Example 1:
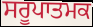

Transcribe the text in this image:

ਸਰੂਪਾਤਮਕ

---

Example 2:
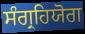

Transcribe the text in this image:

ਸੰਗ੍ਰਹਿਯੋਗ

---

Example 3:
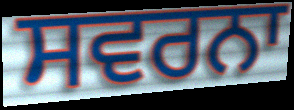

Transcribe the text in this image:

ਸਵਰਨਾ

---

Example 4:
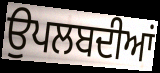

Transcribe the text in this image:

ਉਪਲਬਦੀਆਂ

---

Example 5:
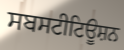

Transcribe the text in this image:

ਸਬਸਟੀਟਿਊਸ਼ਨ